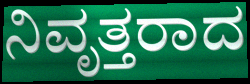
ನಿವೃತ್ತರಾದ